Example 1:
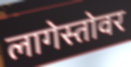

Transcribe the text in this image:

लागेस्तोवर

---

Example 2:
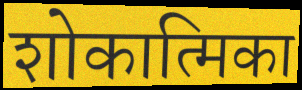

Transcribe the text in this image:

शोकात्मिका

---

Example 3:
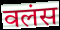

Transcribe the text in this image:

वलंस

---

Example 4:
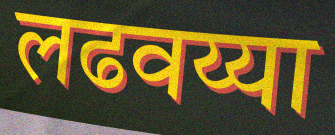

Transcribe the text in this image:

लढवय्या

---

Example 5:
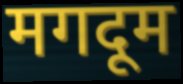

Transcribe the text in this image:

मगदूम